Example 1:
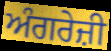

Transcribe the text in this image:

ਅੰਗਰੇਜ਼ੀ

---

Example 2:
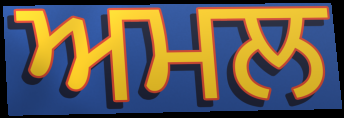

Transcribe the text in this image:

ਅਮਲ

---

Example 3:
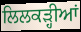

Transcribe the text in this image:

ਲਿਲਕੜ੍ਹੀਆਂ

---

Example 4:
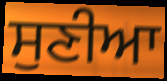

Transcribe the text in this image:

ਸੁਣੀਆ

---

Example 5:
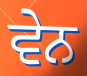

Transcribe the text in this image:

ਵੇਨ